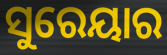
ସୁରେୟାର